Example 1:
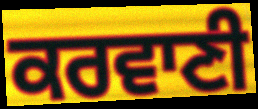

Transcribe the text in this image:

ਕਰਵਾਣੀ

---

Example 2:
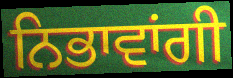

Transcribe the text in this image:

ਨਿਭਾਵਾਂਗੀ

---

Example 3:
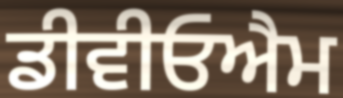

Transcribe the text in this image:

ਡੀਵੀਓਐਮ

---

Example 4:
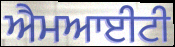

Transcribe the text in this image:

ਐਮਆਈਟੀ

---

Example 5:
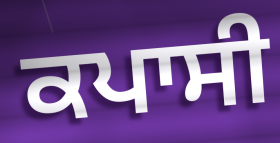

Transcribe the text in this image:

ਕਪਾਸੀ